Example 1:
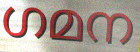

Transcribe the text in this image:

ഗമന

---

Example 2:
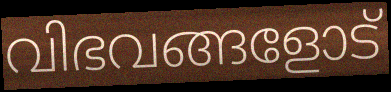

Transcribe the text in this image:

വിഭവങ്ങളോട്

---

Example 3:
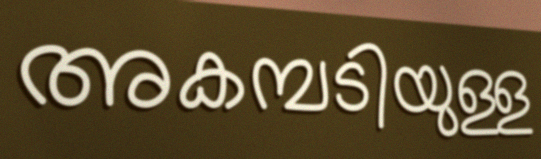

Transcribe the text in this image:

അകമ്പടിയുള്ള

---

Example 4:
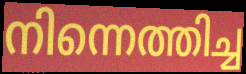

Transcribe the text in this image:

നിന്നെത്തിച്ച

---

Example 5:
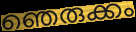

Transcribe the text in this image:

ഞെരുക്കം